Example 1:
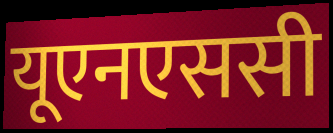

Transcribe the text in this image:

यूएनएससी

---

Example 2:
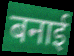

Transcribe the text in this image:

बनाई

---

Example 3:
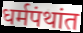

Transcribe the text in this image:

धर्मपंथांत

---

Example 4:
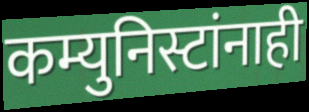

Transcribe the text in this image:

कम्युनिस्टांनाही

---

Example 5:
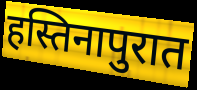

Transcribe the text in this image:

हस्तिनापुरात